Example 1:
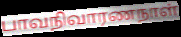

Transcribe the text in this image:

பாவநிவாரணநாள்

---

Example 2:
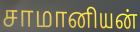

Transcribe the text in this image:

சாமானியன்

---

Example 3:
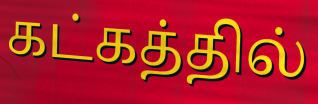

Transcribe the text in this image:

கட்கத்தில்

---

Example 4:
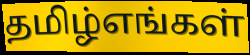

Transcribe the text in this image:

தமிழ்எங்கள்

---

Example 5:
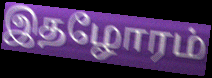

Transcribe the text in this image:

இதழோரம்